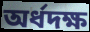
অর্ধদক্ষ